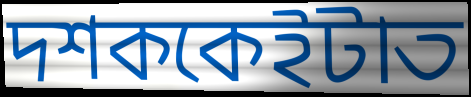
দশককেইটাত